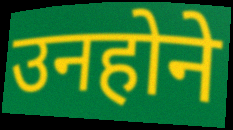
उनहोने